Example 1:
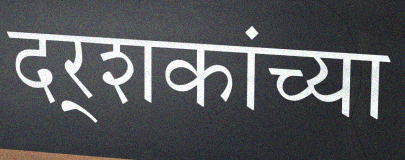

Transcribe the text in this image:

दर्शकांच्या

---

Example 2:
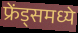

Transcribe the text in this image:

फ्रेंड्समध्ये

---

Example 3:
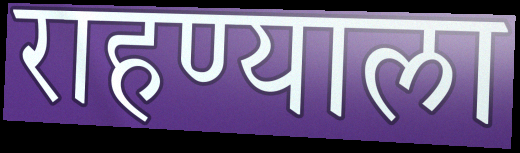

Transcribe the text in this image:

राहण्याला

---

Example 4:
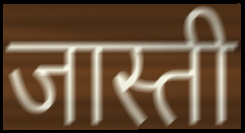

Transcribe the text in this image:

जास्ती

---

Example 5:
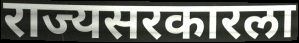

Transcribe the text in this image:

राज्यसरकारला